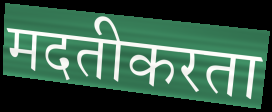
मदतीकरता